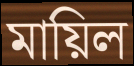
মায়িল